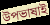
উপভাষাই